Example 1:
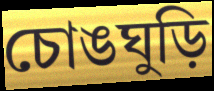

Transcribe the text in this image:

চোঙঘুড়ি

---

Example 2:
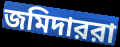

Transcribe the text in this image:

জমিদাররা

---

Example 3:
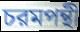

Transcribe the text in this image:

চরমপন্থী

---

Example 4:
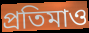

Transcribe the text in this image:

প্রতিমাও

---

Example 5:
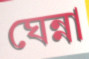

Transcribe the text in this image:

ঘেন্না